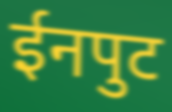
ईनपुट